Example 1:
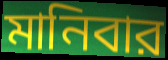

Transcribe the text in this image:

মানিবার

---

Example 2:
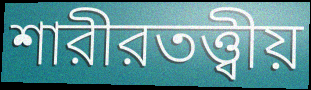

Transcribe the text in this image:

শারীরতত্ত্বীয়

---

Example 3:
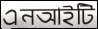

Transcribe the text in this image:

এনআইটি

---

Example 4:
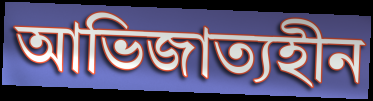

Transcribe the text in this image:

আভিজাত্যহীন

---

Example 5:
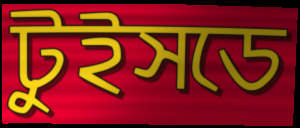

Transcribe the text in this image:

টুইসডে